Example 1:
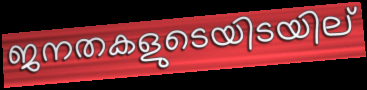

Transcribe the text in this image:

ജനതകളുടെയിടയില്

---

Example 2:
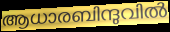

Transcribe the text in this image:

ആധാരബിന്ദുവിൽ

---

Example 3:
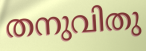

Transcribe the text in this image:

തനുവിതു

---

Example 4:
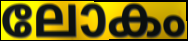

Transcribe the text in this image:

ലോകം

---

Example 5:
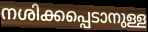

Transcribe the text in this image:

നശിക്കപ്പെടാനുള്ള